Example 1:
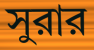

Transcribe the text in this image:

সুরার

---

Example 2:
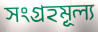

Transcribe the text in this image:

সংগ্রহমূল্য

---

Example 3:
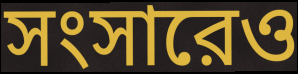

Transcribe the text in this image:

সংসারেও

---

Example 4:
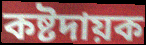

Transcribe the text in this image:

কষ্টদায়ক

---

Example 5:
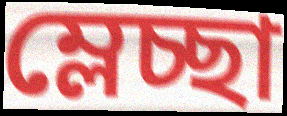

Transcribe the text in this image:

ম্লেচ্ছা